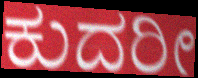
ಕುದರೀ